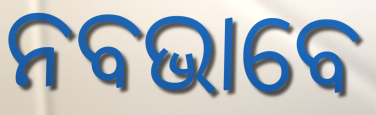
ନବଭାବେ